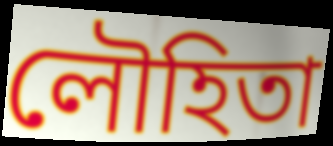
লৌহিতা